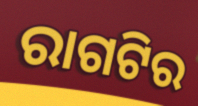
ରାଗଟିର